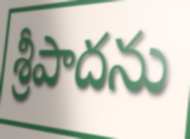
శ్రీపాదను